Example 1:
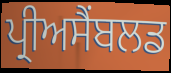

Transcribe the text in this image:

ਪ੍ਰੀਅਸੈਂਬਲਡ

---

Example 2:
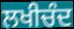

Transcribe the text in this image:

ਲਖੀਚੰਦ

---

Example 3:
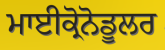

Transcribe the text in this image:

ਮਾਈਕ੍ਰੋਨੋਡੂਲਰ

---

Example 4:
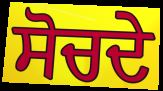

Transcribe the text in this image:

ਸੋਚਦੇ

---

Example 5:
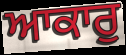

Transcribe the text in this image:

ਆਕਾਰੁ